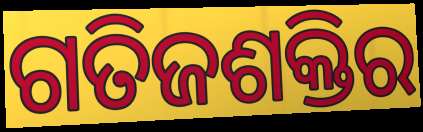
ଗତିଜଶକ୍ତିର